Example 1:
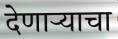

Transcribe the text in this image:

देणार्‍याचा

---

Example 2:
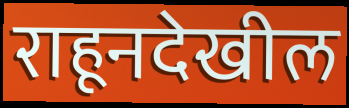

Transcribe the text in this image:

राहूनदेखील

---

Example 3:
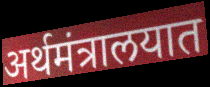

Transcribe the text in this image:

अर्थमंत्रालयात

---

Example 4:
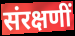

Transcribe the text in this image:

संरक्षणीं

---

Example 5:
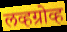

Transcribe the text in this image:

लव्हग्रोव्ह